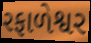
રફાળેશ્વર